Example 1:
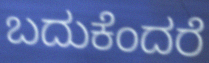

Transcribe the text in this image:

ಬದುಕೆಂದರೆ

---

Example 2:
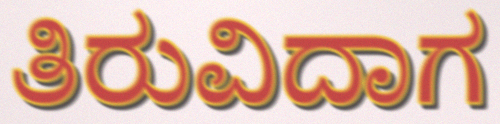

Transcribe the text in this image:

ತಿರುವಿದಾಗ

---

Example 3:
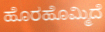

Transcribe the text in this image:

ಹೊರಹೊಮ್ಮಿದೆ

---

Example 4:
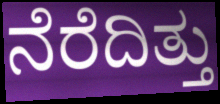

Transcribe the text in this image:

ನೆರೆದಿತ್ತು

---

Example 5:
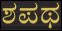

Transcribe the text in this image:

ಶಪಥ